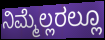
ನಿಮ್ಮೆಲ್ಲರಲ್ಲೂ